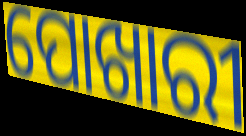
ପୋଖାରୀ